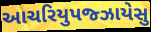
આચરિયુપજ્ઝાયેસુ